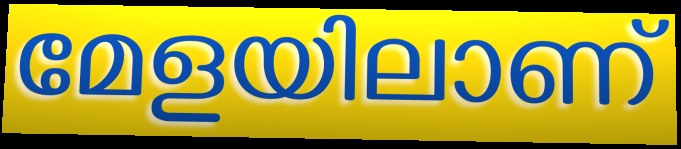
മേളയിലാണ്